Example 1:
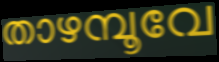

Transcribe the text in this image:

താഴമ്പൂവേ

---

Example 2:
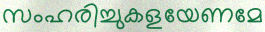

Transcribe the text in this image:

സംഹരിച്ചുകളയേണമേ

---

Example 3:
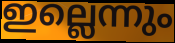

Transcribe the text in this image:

ഇല്ലെന്നും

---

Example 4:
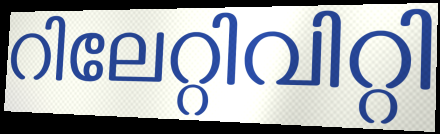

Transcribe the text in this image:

റിലേറ്റിവിറ്റി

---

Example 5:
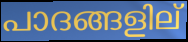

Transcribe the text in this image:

പാദങ്ങളില്